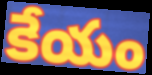
కేయం